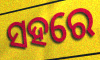
ସହରେ